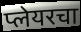
प्लेयरचा